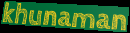
khunaman